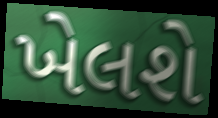
ખેલશે